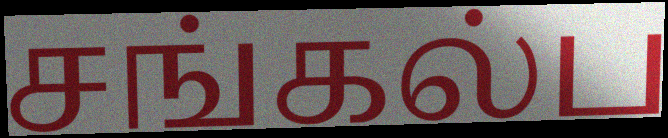
சங்கல்ப